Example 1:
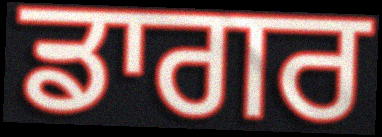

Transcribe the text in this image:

ਡਾਗਰ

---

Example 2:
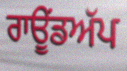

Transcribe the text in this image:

ਰਾਊਂਡਅੱਪ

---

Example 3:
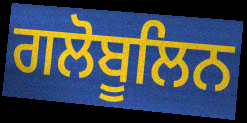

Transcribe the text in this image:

ਗਲੋਬੂਲਿਨ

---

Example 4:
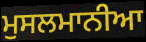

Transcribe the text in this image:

ਮੁਸਲਮਾਨੀਆ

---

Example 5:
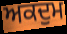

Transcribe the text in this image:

ਅਕਦੁਮ